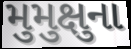
મુમુક્ષુના